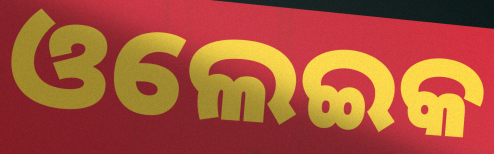
ଓଲେଇକ